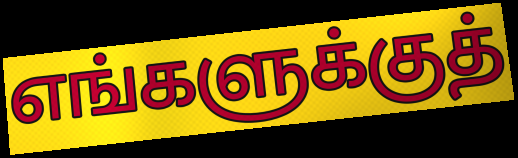
எங்களுக்குத்